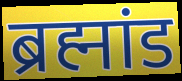
ब्रह्मांड